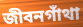
জীবনগাঁথা